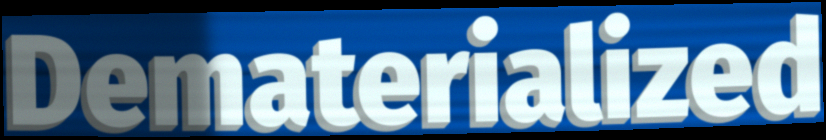
Dematerialized